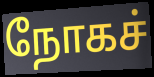
நோகச்